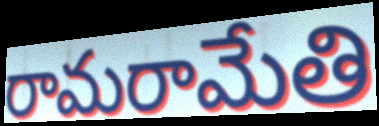
రామరామేతి